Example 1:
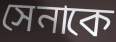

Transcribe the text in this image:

সেনাকে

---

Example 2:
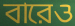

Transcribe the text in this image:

বারেও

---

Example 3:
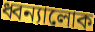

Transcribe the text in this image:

ধ্বন্যালোক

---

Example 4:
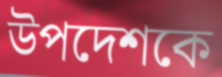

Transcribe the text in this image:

উপদেশকে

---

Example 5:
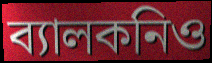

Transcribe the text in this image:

ব্যালকনিও